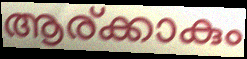
ആര്ക്കാകും